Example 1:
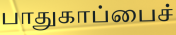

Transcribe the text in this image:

பாதுகாப்பைச்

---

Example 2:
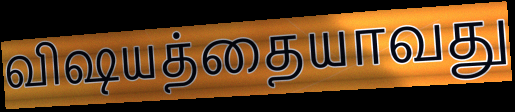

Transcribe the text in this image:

விஷயத்தையாவது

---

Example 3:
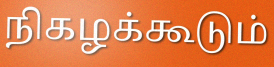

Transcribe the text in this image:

நிகழக்கூடும்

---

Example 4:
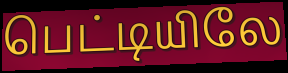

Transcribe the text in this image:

பெட்டியிலே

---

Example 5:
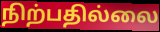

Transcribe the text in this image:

நிற்பதில்லை